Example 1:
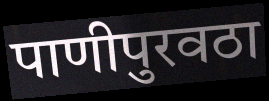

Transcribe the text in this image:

पाणीपुरवठा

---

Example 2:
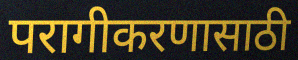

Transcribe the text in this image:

परागीकरणासाठी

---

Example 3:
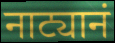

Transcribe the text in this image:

नाट्यानं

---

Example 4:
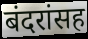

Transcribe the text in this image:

बंदरांसह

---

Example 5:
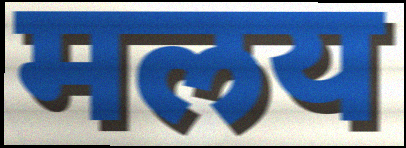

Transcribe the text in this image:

मलय